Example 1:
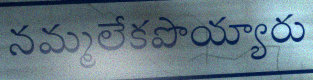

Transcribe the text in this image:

నమ్మలేకపొయ్యారు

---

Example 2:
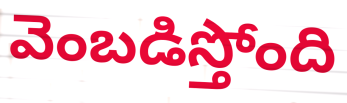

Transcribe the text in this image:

వెంబడిస్తోంది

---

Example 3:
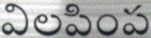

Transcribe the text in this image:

విలపింప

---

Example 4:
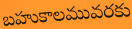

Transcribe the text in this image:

బహుకాలమువరకు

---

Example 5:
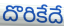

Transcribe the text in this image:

దొరికేదే